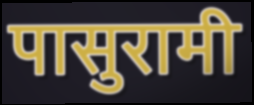
पासुरामी